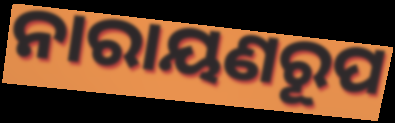
ନାରାୟଣରୂପ